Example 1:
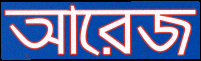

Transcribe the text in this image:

আরেজ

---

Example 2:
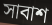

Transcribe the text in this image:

সাবাশ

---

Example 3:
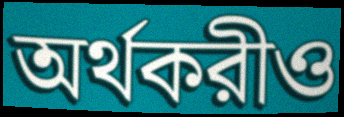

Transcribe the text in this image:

অর্থকরীও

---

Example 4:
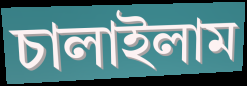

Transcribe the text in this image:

চালাইলাম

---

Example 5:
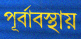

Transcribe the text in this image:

পূর্বাবস্থায়